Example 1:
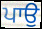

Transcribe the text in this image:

ਪਾਉ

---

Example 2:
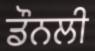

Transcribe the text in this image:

ਡੌਨਲੀ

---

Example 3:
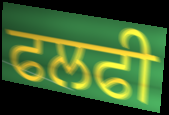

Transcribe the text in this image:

ਫਲਫੀ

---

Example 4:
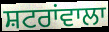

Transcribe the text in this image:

ਸ਼ਟਰਾਂਵਾਲਾ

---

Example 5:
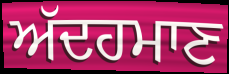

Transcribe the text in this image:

ਅੱਦਹਮਾਣ